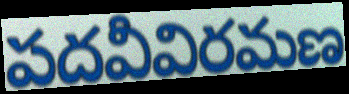
పదవీవిరమణ